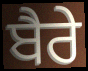
ਬੈਰੇ